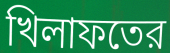
খিলাফতের